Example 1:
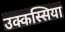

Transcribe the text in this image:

उक्कस्सिया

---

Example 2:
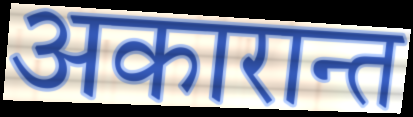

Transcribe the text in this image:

अकारान्त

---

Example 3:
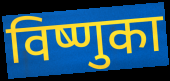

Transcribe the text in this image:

विष्णुका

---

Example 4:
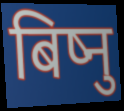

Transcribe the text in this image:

बिष्नु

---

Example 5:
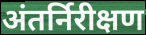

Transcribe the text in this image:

अंतर्निरीक्षण